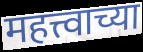
महत्त्वाच्या